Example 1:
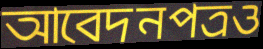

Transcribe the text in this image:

আবেদনপত্রও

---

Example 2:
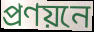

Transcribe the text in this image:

প্রণয়নে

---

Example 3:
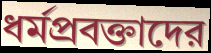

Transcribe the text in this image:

ধর্মপ্রবক্তাদের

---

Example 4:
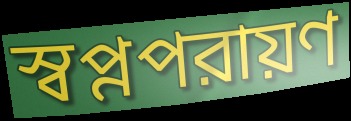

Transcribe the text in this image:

স্বপ্নপরায়ণ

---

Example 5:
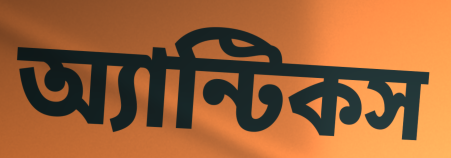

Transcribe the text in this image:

অ্যান্টিকস